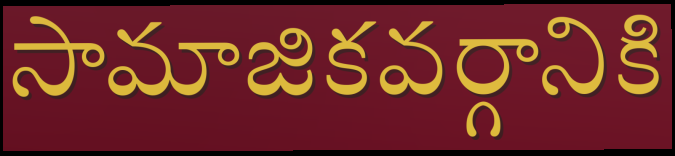
సామాజికవర్గానికి